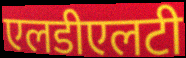
एलडीएलटी